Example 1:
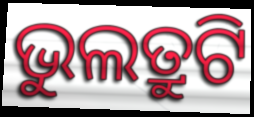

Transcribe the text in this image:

ଭୁଲତ୍ରୁଟି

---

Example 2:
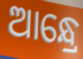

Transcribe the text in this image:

ଆନ୍ଧ୍ରେ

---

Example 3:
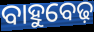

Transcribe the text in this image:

ବାହୁବେଢ଼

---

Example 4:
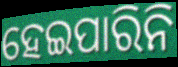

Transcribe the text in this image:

ହେଇପାରିନି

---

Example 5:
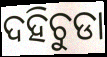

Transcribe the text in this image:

ଦହିଚୁଡା